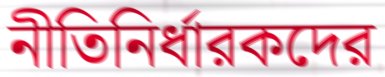
নীতিনির্ধারকদের